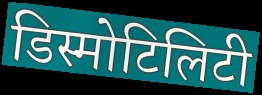
डिस्मोटिलिटी